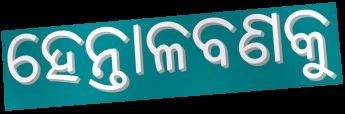
ହେନ୍ତାଳବଣକୁ